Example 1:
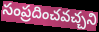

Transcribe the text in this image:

సంప్రదించవచ్చని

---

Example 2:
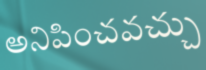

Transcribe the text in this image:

అనిపించవచ్చు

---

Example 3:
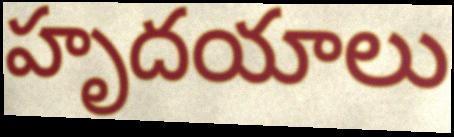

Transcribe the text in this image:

హృదయాలు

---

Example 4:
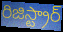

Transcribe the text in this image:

రిజిస్ట్రార్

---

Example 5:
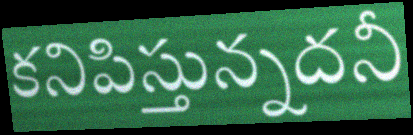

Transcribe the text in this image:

కనిపిస్తున్నదనీ